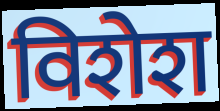
विशेश